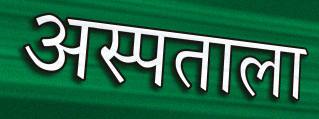
अस्पताला